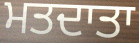
ਮਤਦਾਤਾ